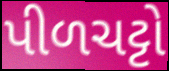
પીળચટ્ટો